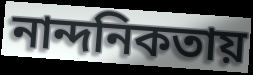
নান্দনিকতায়